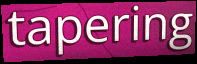
tapering